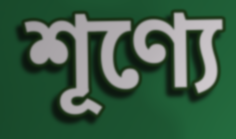
শূণ্যে